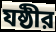
যষ্ঠীর